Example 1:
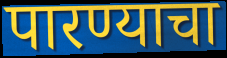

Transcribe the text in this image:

पारण्याचा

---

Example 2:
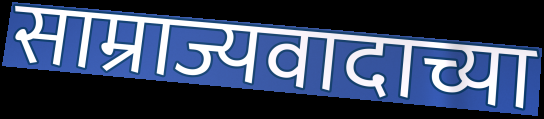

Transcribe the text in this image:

साम्राज्यवादाच्या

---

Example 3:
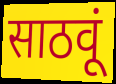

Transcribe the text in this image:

साठवूं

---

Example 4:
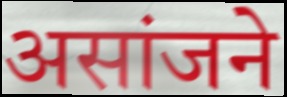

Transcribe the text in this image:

असांजने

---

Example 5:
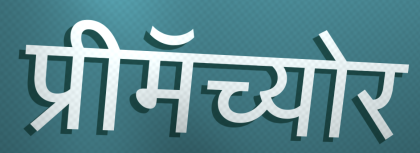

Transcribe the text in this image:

प्रीमॅच्योर